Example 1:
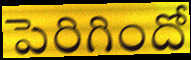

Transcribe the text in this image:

పెరిగిందో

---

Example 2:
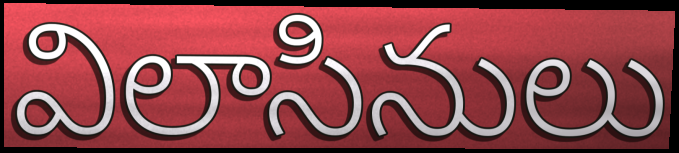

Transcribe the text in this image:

విలాసినులు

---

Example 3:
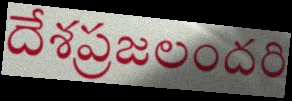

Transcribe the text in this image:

దేశప్రజలందరి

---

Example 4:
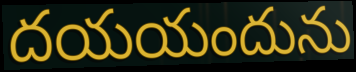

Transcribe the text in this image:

దయయందును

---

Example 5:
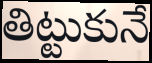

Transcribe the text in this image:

తిట్టుకునే